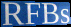
RFBs